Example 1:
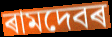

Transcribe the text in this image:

ৰামদেবৰ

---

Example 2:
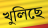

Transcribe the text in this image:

খুলিছে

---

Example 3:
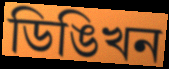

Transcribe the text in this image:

ডিঙিখন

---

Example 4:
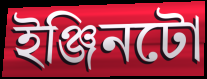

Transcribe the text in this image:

ইঞ্জিনটো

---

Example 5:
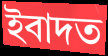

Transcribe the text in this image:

ইবাদত